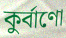
কুর্বাণো